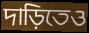
দাড়িতেও